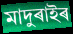
মাদুৰাইৰ